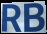
RB